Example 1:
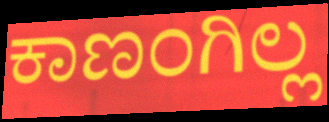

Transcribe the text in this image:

ಕಾಣಂಗಿಲ್ಲ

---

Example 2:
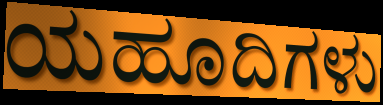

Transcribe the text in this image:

ಯಹೂದಿಗಳು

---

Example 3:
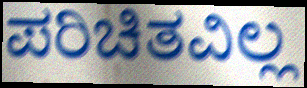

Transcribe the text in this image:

ಪರಿಚಿತವಿಲ್ಲ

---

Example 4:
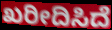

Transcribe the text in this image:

ಖರೀದಿಸಿದೆ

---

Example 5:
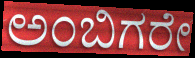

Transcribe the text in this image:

ಅಂಬಿಗರೇ